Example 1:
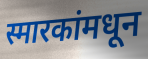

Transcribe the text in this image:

स्मारकांमधून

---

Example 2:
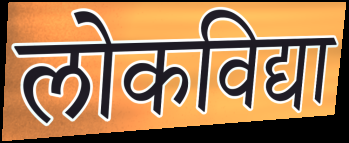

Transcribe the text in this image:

लोकविद्या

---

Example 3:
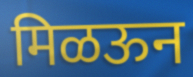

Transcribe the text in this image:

मिळऊन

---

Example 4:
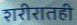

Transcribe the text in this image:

शरीरातही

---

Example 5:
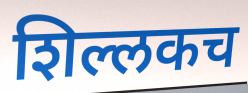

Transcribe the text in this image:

शिल्लकच